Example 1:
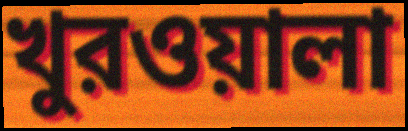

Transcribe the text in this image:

খুরওয়ালা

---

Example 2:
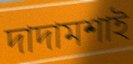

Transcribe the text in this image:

দাদামশাই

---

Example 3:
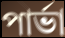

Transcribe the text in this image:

পার্ভা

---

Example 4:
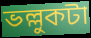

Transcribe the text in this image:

ভল্লুকটা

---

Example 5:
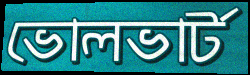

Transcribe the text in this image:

ভোলভার্ট